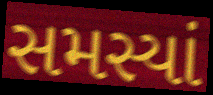
સમસ્યાં